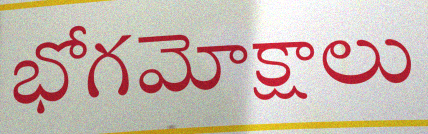
భోగమోక్షాలు